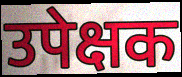
उपेक्षक